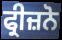
ਫ੍ਰੀਜ਼ਨੋ